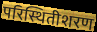
परिस्थितीशरण